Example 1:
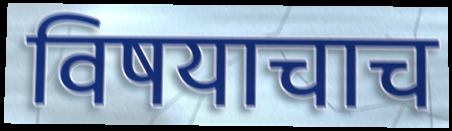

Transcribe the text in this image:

विषयाचाच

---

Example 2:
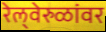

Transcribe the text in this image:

रेल्वेरुळांवर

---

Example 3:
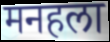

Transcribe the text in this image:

मनहला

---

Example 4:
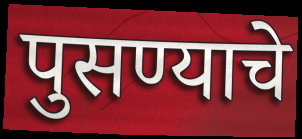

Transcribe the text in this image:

पुसण्याचे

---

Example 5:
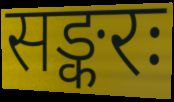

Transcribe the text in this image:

सङ्करः